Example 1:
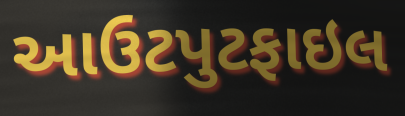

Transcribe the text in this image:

આઉટપુટફાઇલ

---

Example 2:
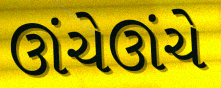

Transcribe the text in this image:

ઊંચેઊંચે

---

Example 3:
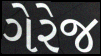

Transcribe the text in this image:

ગેરેજ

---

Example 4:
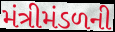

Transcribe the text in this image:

મંત્રીમંડળની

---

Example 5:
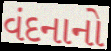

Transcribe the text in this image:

વંદનાનો